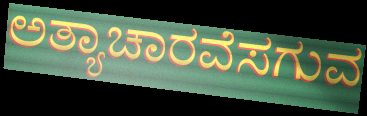
ಅತ್ಯಾಚಾರವೆಸಗುವ